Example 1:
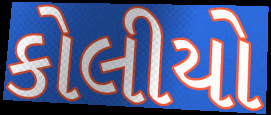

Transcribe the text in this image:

કોલીયો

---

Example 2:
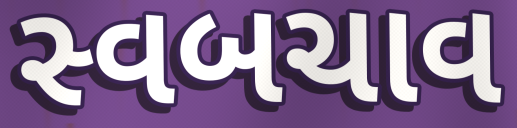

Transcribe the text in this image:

સ્વબચાવ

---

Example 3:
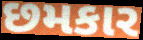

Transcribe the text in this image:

છમકાર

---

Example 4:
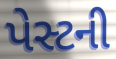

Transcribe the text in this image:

પેસ્ટની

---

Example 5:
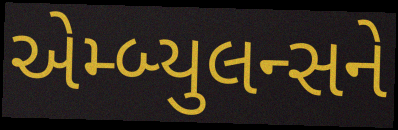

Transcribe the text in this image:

એમ્બ્યુલન્સને